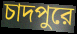
চাদপুরে